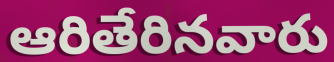
ఆరితేరినవారు